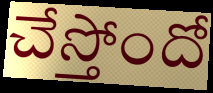
చేస్తోందో